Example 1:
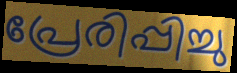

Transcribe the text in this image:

പ്രേരിപ്പിച്ചു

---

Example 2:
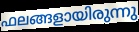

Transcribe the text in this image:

ഫലങ്ങളായിരുന്നു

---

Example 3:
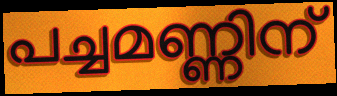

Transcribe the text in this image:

പച്ചമണ്ണിന്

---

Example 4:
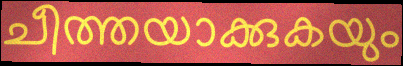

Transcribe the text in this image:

ചീത്തയാക്കുകയും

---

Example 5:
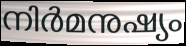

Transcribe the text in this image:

നിർമനുഷ്യം